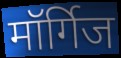
मॉर्गिज